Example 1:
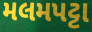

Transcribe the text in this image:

મલમપટ્ટા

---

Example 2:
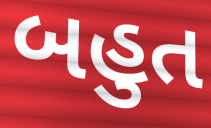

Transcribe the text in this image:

બહુત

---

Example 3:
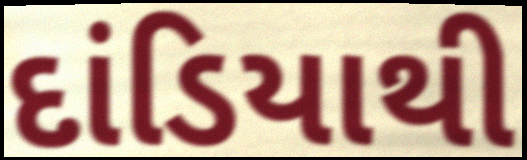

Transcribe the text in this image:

દાંડિયાથી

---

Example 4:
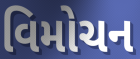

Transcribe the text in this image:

વિમોચન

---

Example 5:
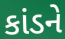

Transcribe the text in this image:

કાંડને